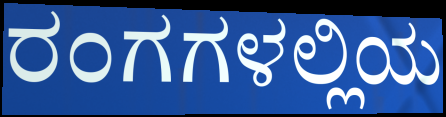
ರಂಗಗಳಲ್ಲಿಯ